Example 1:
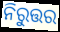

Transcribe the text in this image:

ନିରୁତ୍ତର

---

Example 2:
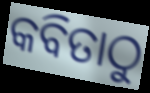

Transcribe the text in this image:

କବିତାଠୁ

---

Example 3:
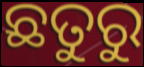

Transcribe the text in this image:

ଛତୁରୁ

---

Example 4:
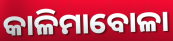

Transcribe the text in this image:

କାଳିମାବୋଳା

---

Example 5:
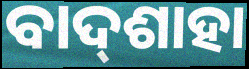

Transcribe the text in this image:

ବାଦ୍‌ଶାହା